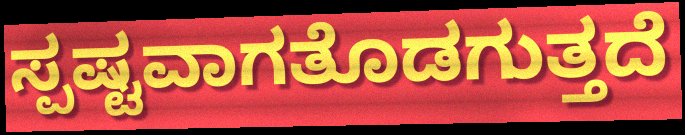
ಸ್ಪಷ್ಟವಾಗತೊಡಗುತ್ತದೆ